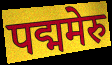
पद्ममेरु